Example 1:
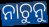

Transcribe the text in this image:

ନାଚୁନୁ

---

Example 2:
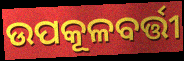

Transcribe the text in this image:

ଉପକୂଳବର୍ତ୍ତୀ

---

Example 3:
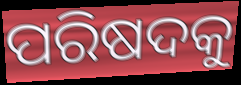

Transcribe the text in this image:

ପରିଷଦକୁ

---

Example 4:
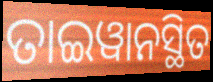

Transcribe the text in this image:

ତାଇୱାନସ୍ଥିତ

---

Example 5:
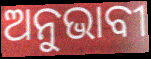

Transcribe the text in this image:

ଅନୁଭାବୀ